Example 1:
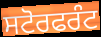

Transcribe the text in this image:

ਸਟੋਰਫਰੰਟ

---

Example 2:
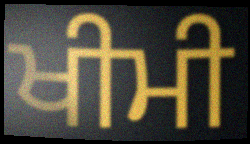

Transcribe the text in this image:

ਖੀਮੀ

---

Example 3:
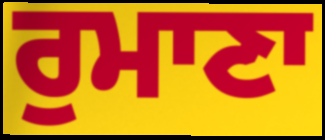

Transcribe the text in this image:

ਰੁਮਾਣਾ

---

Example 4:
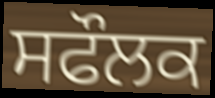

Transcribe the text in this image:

ਸਫੌਲਕ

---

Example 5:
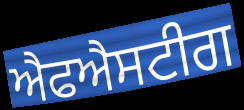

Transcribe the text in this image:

ਐਫਐਸਟੀਗ